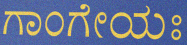
ಗಾಂಗೇಯಃ